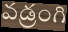
వడ్రంగి